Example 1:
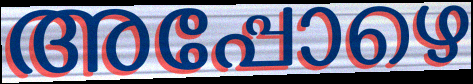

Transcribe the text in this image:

അപ്പോഴെ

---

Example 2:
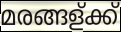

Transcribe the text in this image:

മരങ്ങള്ക്ക്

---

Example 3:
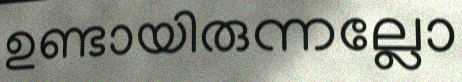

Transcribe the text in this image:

ഉണ്ടായിരുന്നല്ലോ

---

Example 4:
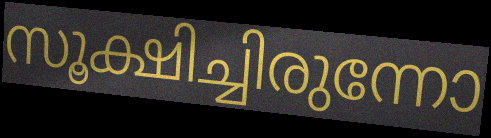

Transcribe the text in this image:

സൂക്ഷിച്ചിരുന്നോ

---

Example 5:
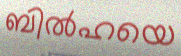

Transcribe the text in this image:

ബിൽഹയെ